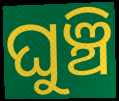
ଘୁଞ୍ଚି